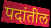
पदांतील